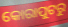
କୋରାପୁଟରୁ